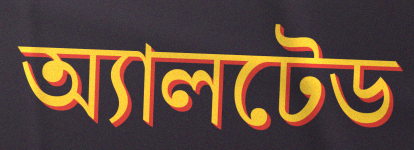
অ্যালটেড